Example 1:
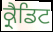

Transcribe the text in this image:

ਕ੍ਰੈਡਿਟ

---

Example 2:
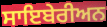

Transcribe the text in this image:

ਸਾਇਬੇਰੀਅਨ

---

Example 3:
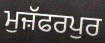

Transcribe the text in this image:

ਮੁਜ਼ੱਫਰਪੁਰ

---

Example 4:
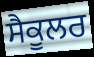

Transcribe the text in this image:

ਸੈਕੂਲਰ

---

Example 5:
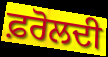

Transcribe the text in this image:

ਫ਼ਰੋਲਦੀ